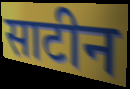
साटीन